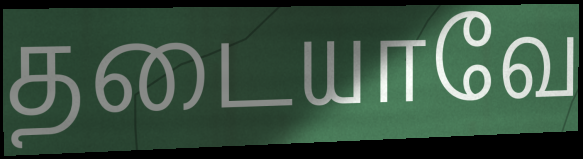
தடையாவே